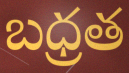
బధ్రత